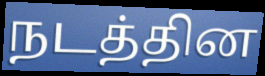
நடத்தின